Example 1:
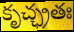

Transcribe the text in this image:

కృచ్ఛ్రతః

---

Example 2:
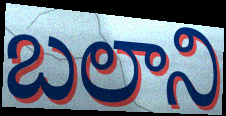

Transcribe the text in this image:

బలాని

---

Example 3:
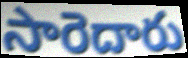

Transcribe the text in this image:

సారెదారు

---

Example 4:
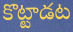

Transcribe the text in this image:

కొట్టాడట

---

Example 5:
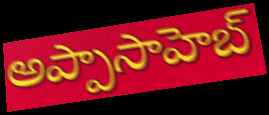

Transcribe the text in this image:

అప్పాసాహెబ్